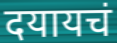
दयायचं